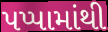
પપ્પામાંથી